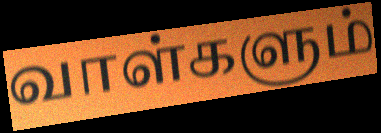
வாள்களும்